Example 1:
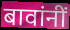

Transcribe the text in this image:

बावांनीं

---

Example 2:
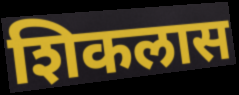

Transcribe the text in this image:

शिकलास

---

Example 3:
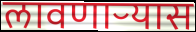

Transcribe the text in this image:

लावणाऱ्यास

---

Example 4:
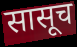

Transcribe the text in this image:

सासूच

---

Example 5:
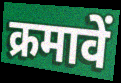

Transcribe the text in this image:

क्रमावें